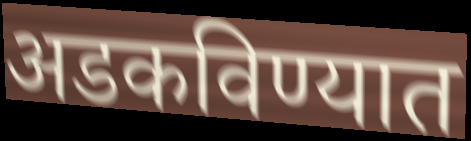
अडकविण्यात